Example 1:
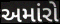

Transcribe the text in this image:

અમાંરો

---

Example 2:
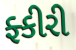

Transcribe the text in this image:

ફ્કીરી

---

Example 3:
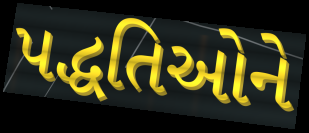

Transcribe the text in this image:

પદ્ધતિઓને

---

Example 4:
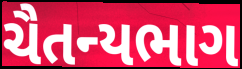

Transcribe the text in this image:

ચૈતન્યભાગ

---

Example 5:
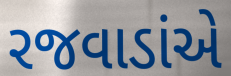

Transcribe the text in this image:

રજવાડાંએ